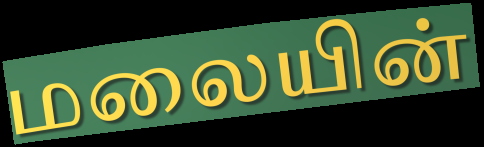
மலையின்